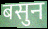
बसुन